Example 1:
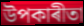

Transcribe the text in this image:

উপকাৰীতা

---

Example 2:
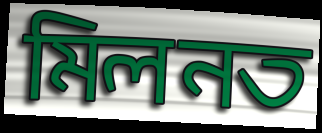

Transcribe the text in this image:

মিলনত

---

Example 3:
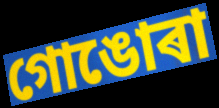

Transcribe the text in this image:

গোঙোৰা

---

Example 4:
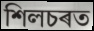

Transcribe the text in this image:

শিলচৰত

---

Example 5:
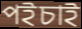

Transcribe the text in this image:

পইচাই